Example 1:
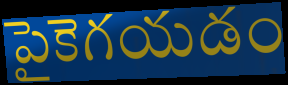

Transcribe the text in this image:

పైకెగయడం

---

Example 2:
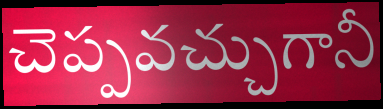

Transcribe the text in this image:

చెప్పవచ్చుగానీ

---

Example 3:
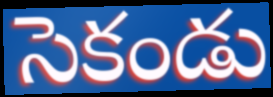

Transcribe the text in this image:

సెకండు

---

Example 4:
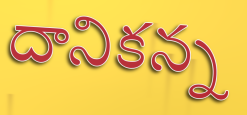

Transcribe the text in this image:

దానికన్న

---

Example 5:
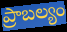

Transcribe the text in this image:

ప్రాబల్యం